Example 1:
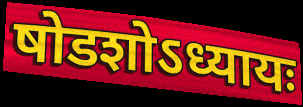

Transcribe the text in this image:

षोडशोऽध्यायः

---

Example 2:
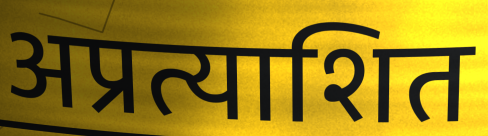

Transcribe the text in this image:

अप्रत्याशित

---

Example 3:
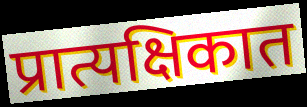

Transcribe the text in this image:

प्रात्यक्षिकात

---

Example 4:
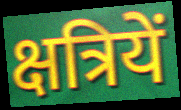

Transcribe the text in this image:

क्षत्रियें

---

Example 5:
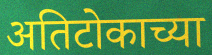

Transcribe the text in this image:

अतिटोकाच्या